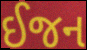
ઈજન